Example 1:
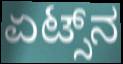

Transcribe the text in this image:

ಏಟ್ಸ್‌ನ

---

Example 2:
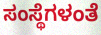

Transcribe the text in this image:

ಸಂಸ್ಥೆಗಳಂತೆ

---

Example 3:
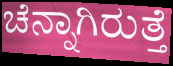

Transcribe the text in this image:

ಚೆನ್ನಾಗಿರುತ್ತೆ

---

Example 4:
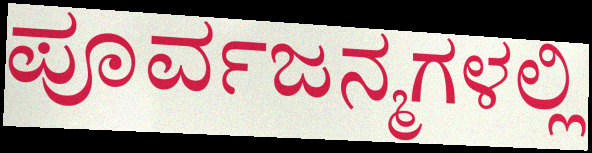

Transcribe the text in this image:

ಪೂರ್ವಜನ್ಮಗಳಲ್ಲಿ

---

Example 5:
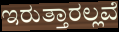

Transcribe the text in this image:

ಇರುತ್ತಾರಲ್ಲವೆ